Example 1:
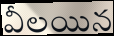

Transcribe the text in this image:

వీలయిన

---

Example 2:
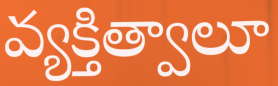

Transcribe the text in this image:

వ్యక్తిత్వాలూ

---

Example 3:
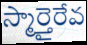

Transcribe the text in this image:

స్మార్తైరేవ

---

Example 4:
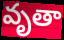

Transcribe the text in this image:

వృతా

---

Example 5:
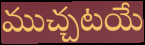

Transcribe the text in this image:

ముచ్చటయే